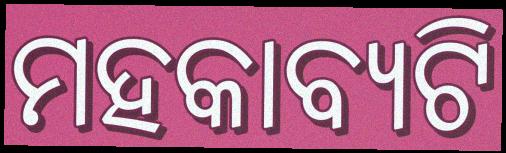
ମହକାବ୍ୟଟି